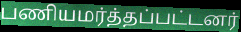
பணியமர்த்தப்பட்டனர்